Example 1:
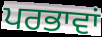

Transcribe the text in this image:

ਪਰਭਾਵਾਂ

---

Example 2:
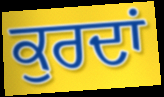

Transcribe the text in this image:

ਕੁਰਦਾਂ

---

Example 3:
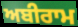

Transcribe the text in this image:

ਅਬੀਰਾਮ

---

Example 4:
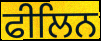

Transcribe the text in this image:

ਫੀਲਿਨ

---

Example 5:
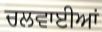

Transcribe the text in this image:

ਚਲਵਾਈਆਂ